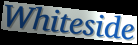
Whiteside